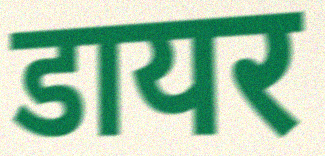
डायर